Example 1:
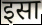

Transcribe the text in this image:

इसा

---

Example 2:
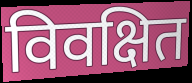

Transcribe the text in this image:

विवक्षित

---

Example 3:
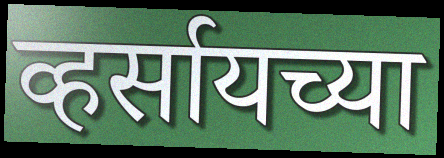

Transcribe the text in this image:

व्हर्सायच्या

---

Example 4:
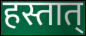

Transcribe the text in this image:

हस्तात्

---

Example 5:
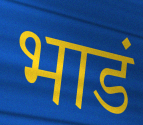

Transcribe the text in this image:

भाडं